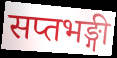
सप्तभङ्गी